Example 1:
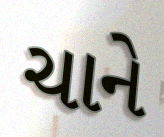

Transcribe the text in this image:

ચાને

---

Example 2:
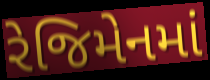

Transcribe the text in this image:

રેજિમેનમાં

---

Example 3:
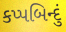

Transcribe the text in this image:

કપ્પબિન્દું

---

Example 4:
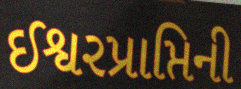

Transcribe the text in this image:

ઈશ્વરપ્રાપ્તિની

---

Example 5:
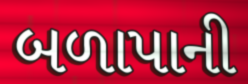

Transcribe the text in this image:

બળાપાની